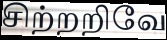
சிற்றறிவே